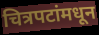
चित्रपटांमधून